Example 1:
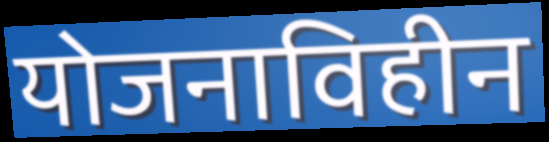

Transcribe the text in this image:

योजनाविहीन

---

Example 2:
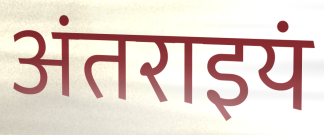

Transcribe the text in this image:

अंतराइयं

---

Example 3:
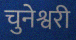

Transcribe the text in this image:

चुनेश्वरी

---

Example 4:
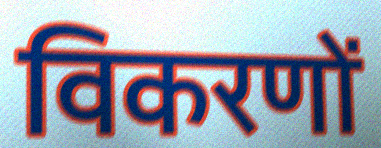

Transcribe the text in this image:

विकरणों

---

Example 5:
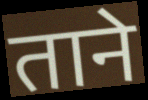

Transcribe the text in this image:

ताने